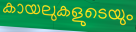
കായലുകളുടെയും